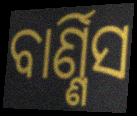
ବାର୍ଣ୍ଣିସ